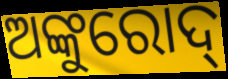
ଅଙ୍କୁରୋଦ୍